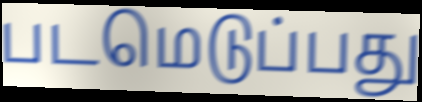
படமெடுப்பது